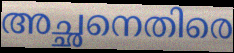
അച്ഛനെതിരെ